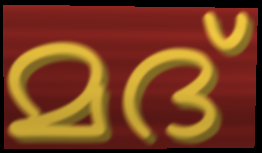
മദ്